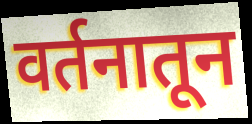
वर्तनातून